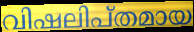
വിഷലിപ്തമായ